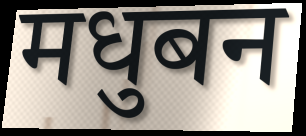
मधुबन